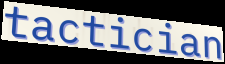
tactician